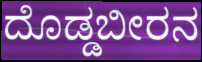
ದೊಡ್ಡಬೀರನ